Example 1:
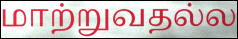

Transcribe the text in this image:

மாற்றுவதல்ல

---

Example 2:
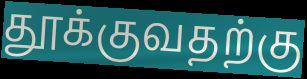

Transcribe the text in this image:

தூக்குவதற்கு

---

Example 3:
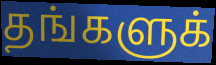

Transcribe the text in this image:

தங்களுக்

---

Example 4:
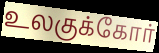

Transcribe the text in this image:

உலகுக்கோர்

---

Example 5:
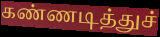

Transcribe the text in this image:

கண்ணடித்துச்